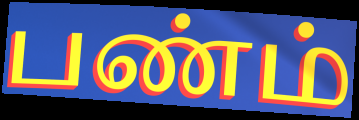
பண்ம்